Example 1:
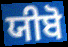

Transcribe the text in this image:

ਯੀਬੋ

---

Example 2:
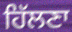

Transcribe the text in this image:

ਹਿੱਲਣਾ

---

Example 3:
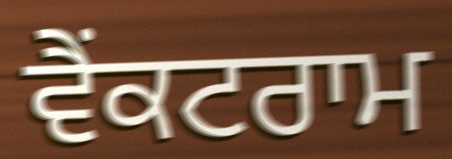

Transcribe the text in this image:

ਵੈਂਕਟਰਾਮ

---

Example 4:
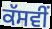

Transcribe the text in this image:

ਕੱਸਵੀਂ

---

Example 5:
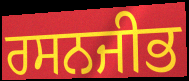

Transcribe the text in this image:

ਰਸਨਜੀਭ